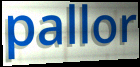
pallor